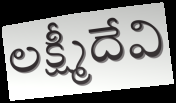
లక్ష్మీదేవి